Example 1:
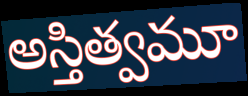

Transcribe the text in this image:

అస్తిత్వమూ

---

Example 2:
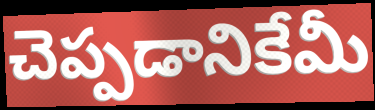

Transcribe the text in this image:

చెప్పడానికేమీ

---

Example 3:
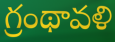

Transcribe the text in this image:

గ్రంథావళి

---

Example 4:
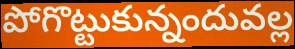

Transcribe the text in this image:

పోగొట్టుకున్నందువల్ల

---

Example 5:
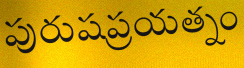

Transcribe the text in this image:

పురుషప్రయత్నం